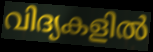
വിദ്യകളിൽ